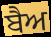
ਬੈਅ